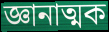
জ্ঞানাত্মক